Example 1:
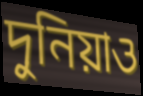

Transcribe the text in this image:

দুনিয়াও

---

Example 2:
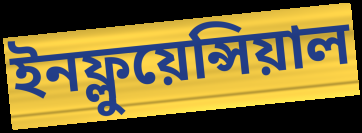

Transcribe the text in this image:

ইনফ্লুয়েন্সিয়াল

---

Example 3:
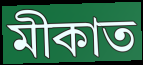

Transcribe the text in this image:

মীকাত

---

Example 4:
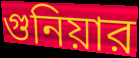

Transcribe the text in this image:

গুনিয়ার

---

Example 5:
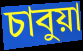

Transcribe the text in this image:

চাবুয়া